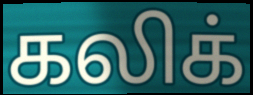
கலிக்